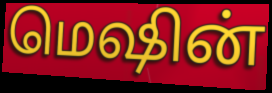
மெஷின்